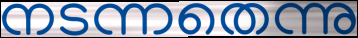
നടന്നതെന്നു